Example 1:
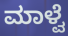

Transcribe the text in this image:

ಮಾಳ್ವೆ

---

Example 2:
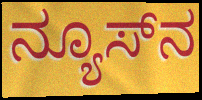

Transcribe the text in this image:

ನ್ಯೂಸ್‌ನ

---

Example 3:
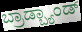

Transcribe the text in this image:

ಬ್ರಾಡ್ಬ್ಯಾಂಡ್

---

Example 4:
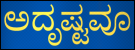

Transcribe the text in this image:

ಅದೃಷ್ಟವೂ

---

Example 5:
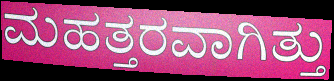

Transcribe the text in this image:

ಮಹತ್ತರವಾಗಿತ್ತು